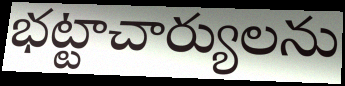
భట్టాచార్యులను